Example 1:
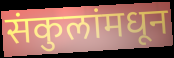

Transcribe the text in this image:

संकुलांमधून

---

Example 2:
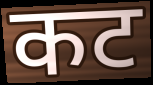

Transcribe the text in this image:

कट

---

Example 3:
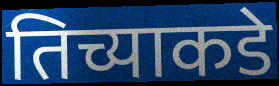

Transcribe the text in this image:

तिच्याकडे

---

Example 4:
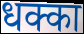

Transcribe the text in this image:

धक्का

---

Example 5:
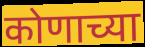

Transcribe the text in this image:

कोणाच्या